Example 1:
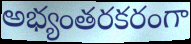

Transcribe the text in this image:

అభ్యంతరకరంగా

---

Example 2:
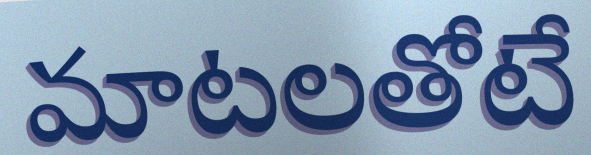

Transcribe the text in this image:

మాటలతోటే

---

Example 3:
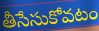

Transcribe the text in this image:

తీసేసుకోవటం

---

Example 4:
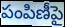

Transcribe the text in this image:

పంపిణీపై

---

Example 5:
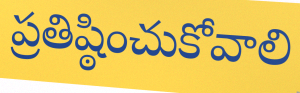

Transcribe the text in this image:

ప్రతిష్ఠించుకోవాలి